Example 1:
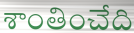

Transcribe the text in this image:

శాంతించేది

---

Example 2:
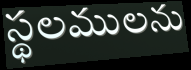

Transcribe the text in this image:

స్థలములను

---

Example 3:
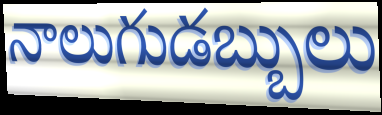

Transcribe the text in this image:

నాలుగుడబ్బులు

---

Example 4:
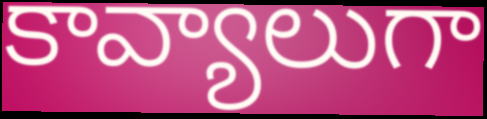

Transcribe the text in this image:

కావ్యాలుగా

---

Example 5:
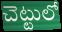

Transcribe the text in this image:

చెట్టులో